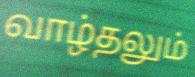
வாழ்தலும்